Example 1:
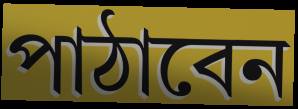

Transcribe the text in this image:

পাঠাবেন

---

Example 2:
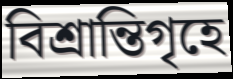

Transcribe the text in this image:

বিশ্রান্তিগৃহে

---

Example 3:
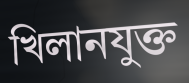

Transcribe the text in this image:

খিলানযুক্ত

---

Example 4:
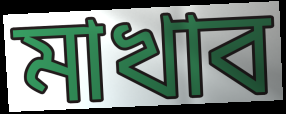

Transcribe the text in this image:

মাখাব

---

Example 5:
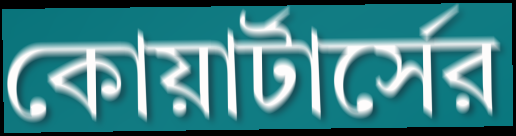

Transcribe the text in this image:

কোয়ার্টার্সের